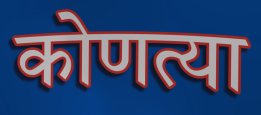
कोणत्या